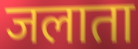
जलाता